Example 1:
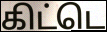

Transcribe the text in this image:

கிட்டெ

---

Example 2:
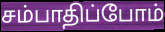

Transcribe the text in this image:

சம்பாதிப்போம்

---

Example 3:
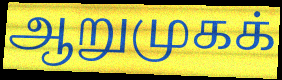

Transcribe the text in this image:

ஆறுமுகக்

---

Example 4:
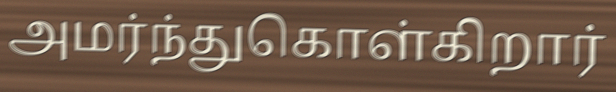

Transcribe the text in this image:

அமர்ந்துகொள்கிறார்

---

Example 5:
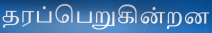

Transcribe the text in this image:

தரப்பெறுகின்றன